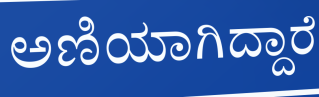
ಅಣಿಯಾಗಿದ್ದಾರೆ